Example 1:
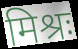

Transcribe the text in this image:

मिश्रः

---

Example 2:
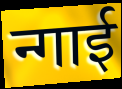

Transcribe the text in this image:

न्गाई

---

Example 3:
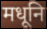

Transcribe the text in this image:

मधूनि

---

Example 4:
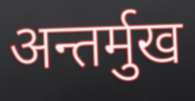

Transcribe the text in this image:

अन्तर्मुख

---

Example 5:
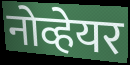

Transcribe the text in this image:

नोव्हेयर